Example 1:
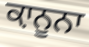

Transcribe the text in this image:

ਕ਼ਾਨੂਨਾ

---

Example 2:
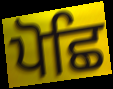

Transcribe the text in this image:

ਪੋਛਿ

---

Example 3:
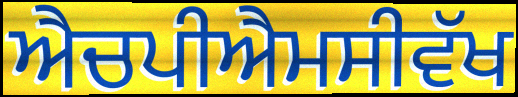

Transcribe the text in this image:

ਐਚਪੀਐਮਸੀਵੱਖ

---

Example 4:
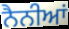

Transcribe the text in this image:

ਨੈਨੀਆਂ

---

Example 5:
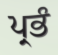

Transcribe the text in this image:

ਪ੍ਰਭੰ